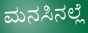
ಮನಸಿನಲ್ಲೆ